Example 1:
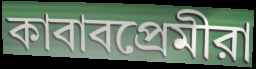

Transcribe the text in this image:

কাবাবপ্রেমীরা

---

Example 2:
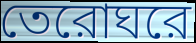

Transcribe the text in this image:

তেরোঘরে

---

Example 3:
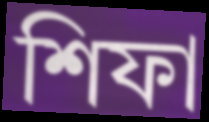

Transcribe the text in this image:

শিফা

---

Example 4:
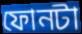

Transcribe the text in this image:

ফোনটা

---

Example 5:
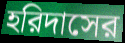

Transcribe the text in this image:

হরিদাসের